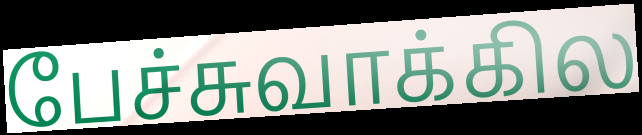
பேச்சுவாக்கில